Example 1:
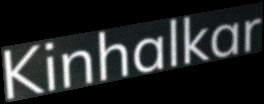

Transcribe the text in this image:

Kinhalkar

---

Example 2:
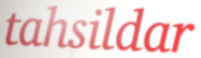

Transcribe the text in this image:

tahsildar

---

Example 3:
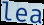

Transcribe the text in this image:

lea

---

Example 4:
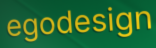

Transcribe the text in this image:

egodesign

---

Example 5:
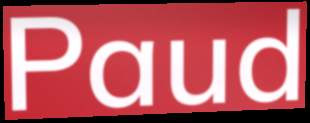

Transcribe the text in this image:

Paud